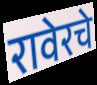
रावेरचे